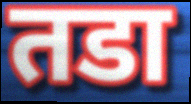
तडा